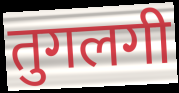
तुगलगी